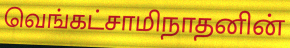
வெங்கட்சாமிநாதனின்